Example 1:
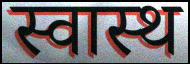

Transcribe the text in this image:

स्वास्थ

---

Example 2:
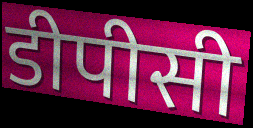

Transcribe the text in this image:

डीपीसी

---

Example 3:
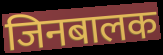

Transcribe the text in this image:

जिनबालक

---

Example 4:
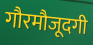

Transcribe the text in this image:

गौरमौजूदगी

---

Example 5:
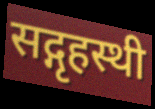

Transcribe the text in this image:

सद्गृहस्थी